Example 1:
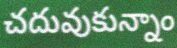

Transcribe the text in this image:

చదువుకున్నాం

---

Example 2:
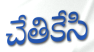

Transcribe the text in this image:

చేతికేసి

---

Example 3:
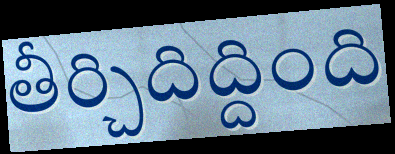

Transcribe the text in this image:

తీర్చిదిద్దింది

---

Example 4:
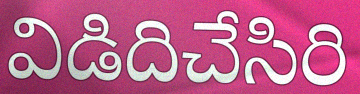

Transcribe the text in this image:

విడిదిచేసిరి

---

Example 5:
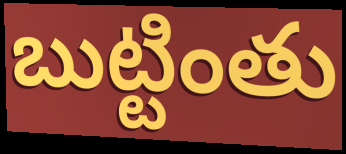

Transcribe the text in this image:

బుట్టింతు